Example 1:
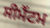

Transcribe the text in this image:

ਸੀਮੈਂਟਮ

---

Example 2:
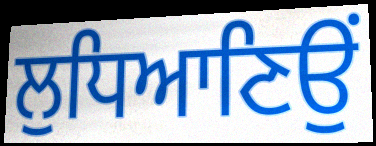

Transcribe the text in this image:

ਲੁਧਿਆਣਿਉਂ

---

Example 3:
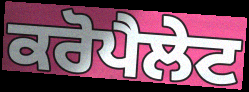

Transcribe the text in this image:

ਕਰੋਪੈਲੇਟ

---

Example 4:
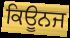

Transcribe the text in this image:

ਕਿਊਨਜ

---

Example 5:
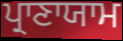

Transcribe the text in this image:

ਪ੍ਰਾਣਾਯਾਮ